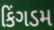
કિંગડમ